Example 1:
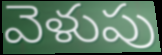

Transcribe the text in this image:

వెళుపు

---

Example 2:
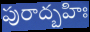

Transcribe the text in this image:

పురాద్బహిః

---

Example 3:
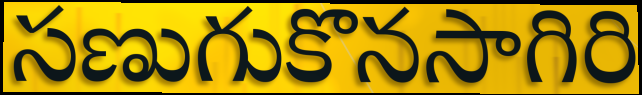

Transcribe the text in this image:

సణుగుకొనసాగిరి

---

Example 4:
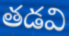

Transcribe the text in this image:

తడవి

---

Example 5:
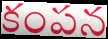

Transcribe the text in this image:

కంపన